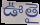
ఊతై